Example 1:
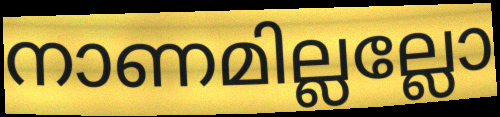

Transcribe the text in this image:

നാണമില്ലല്ലോ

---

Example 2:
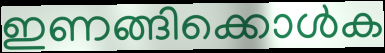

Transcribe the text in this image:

ഇണങ്ങിക്കൊൾക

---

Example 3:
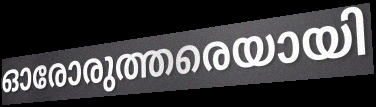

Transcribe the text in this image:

ഓരോരുത്തരെയായി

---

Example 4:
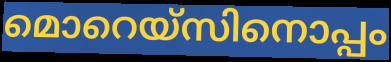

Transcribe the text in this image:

മൊറെയ്സിനൊപ്പം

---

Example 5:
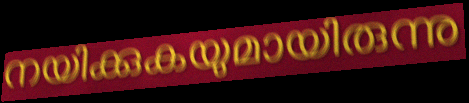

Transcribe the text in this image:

നയിക്കുകയുമായിരുന്നു